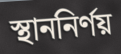
স্থাননির্ণয়